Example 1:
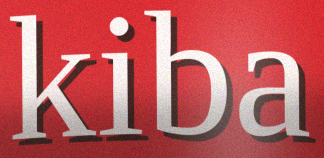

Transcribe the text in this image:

kiba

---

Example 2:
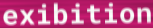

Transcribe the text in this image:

exibition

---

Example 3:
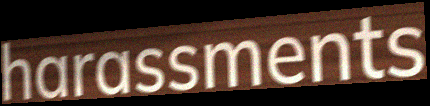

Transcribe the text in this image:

harassments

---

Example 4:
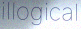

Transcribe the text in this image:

illogical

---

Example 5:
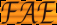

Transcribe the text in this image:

FAE